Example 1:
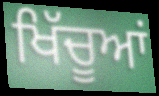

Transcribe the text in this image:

ਖਿੱਚੂਆਂ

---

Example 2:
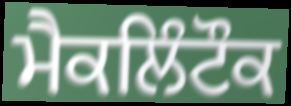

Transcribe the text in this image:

ਮੈਕਲਿੰਟੌਕ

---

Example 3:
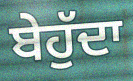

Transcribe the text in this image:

ਬੇਹੁੱਦਾ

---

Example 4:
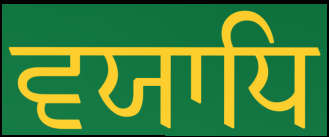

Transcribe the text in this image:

ਵਯਾਧਿ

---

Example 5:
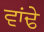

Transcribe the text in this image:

ਵਾਂਢੇ